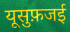
यूसुफ़जई